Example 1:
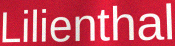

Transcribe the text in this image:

Lilienthal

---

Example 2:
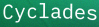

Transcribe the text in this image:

Cyclades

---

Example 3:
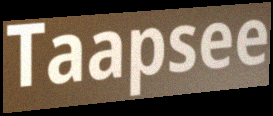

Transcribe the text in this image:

Taapsee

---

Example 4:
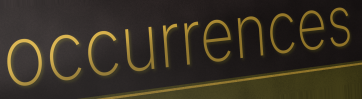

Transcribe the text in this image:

occurrences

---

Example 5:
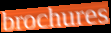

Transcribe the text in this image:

brochures